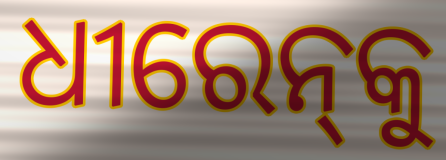
ଧୀରେନ୍‌କୁ